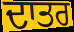
ਦਾਤਰ